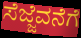
ಸೆಜ್ಜೆವನೆಗೆ